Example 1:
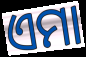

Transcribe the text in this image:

ଏମା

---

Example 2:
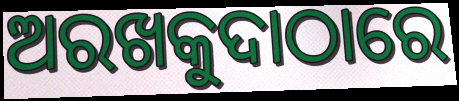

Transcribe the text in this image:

ଅରଖକୁଦାଠାରେ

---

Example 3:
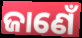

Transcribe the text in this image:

ଜାଣେଁ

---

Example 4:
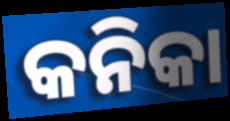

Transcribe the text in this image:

କନିକା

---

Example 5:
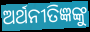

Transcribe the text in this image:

ଅର୍ଥନୀତିଜ୍ଞଙ୍କୁ